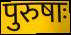
पुरुषाः